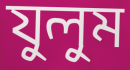
যুলুম